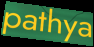
pathya